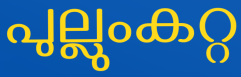
പുല്ലുംകറ്റ